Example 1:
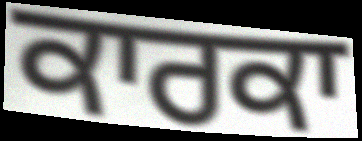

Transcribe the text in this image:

ਕਾਰਕਾ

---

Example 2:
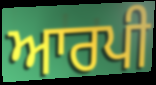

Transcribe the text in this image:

ਆਰਪੀ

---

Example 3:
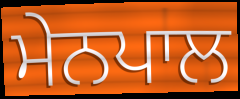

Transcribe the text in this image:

ਮੇਨਪਾਲ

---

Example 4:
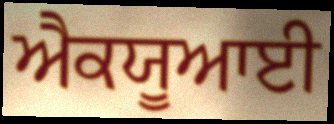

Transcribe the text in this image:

ਐਕਯੂਆਈ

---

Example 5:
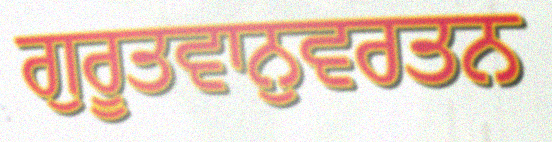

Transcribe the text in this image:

ਗੁਰੂਤਵਾਨੁਵਰਤਨ